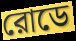
রোডে